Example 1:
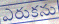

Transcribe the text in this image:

ఎరుకను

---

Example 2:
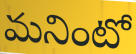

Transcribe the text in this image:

మనింటో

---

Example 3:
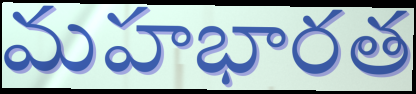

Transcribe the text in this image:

మహభారత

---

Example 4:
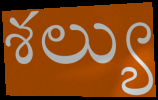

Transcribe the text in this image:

శల్యు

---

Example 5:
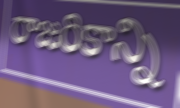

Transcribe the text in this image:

రాజరికాన్ని